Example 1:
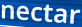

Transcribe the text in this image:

nectar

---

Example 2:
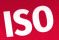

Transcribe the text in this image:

ISO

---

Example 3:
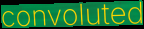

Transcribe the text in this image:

convoluted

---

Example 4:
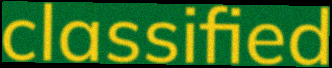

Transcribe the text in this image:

classified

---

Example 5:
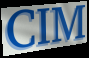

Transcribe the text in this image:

CIM